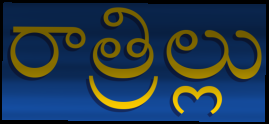
రాత్రిల్లు